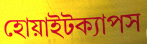
হোয়াইটক্যাপস